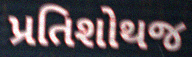
પ્રતિશોથજ